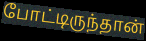
போட்டிருந்தான்